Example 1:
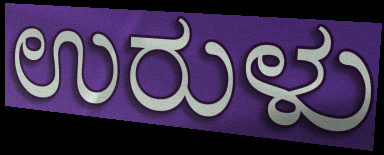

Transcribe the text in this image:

ಉರುಳು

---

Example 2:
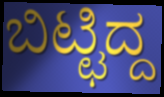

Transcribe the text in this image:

ಬಿಟ್ಟಿದ್ದ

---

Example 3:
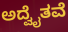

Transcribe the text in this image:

ಅದ್ವೈತವೆ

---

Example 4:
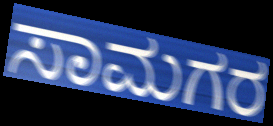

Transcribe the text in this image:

ಸಾಮಗರ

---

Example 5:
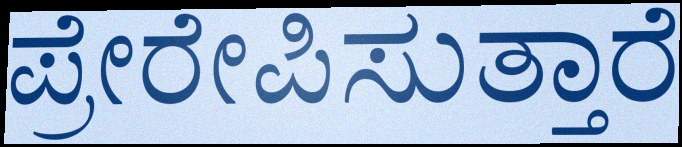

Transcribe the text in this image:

ಪ್ರೇರೇಪಿಸುತ್ತಾರೆ